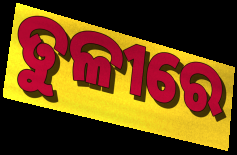
ତୁଳୀରେ